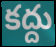
కద్దు